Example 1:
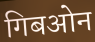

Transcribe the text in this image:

गिबओन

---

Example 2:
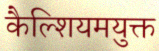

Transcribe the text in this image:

कैल्शियमयुक्त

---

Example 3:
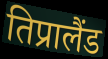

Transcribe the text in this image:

तिप्रालैंड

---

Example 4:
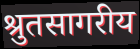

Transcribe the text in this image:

श्रुतसागरीय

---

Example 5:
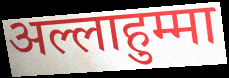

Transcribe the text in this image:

अल्लाहुम्मा